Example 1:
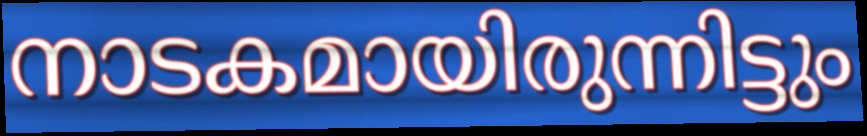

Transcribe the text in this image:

നാടകമായിരുന്നിട്ടും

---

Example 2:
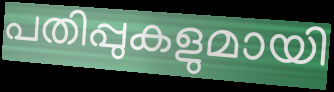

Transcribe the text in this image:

പതിപ്പുകളുമായി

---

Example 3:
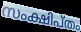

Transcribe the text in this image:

സംക്ഷിപ്തം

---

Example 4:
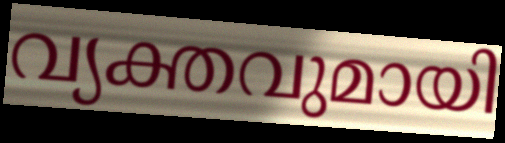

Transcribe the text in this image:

വ്യക്തവുമായി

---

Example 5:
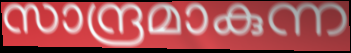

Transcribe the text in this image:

സാന്ദ്രമാകുന്ന